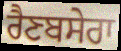
ਰੈਣਬਸੇਰਾ